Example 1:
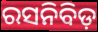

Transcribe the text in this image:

ରସନିବିଡ଼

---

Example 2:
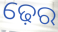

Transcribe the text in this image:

ଢ଼େର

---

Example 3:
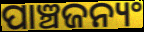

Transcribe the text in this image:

ପାଞ୍ଚଜନ୍ୟଂ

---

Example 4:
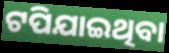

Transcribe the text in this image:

ଟପିଯାଇଥିବା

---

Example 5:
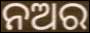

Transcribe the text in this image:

ନଅର